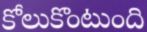
కోలుకొంటుంది